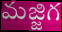
మజ్జిగ